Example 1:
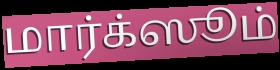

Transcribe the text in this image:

மார்க்ஸூம்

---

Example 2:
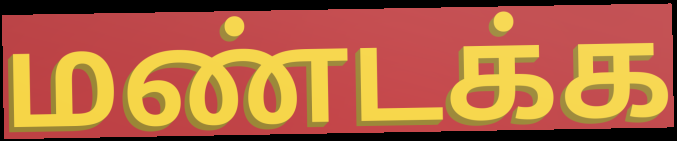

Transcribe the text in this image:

மண்டக்க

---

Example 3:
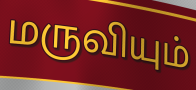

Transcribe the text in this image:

மருவியும்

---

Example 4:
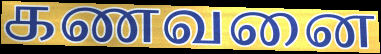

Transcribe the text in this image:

கணவனை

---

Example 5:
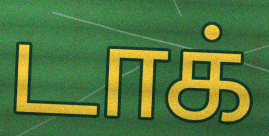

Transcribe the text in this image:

டாக்